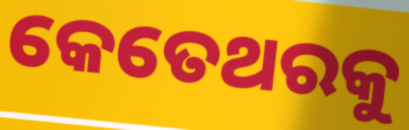
କେତେଥରକୁ